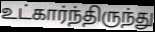
உட்கார்ந்திருந்து